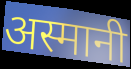
अस्मानी